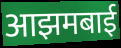
आझमबाई